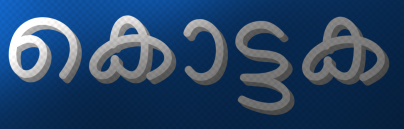
കൊട്ടക